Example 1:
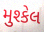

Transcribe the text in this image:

મુશ્કેલ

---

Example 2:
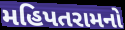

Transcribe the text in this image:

મહિપતરામનો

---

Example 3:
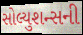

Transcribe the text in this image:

સોલ્યુશન્સની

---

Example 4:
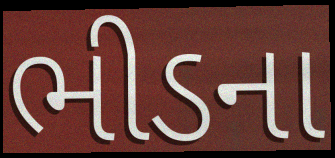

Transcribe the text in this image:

ભીડના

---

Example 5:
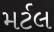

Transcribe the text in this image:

મર્ટલ